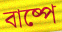
বাষ্পে